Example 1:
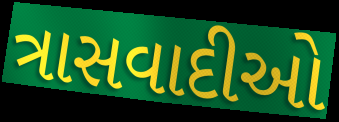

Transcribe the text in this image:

ત્રાસવાદીઓ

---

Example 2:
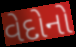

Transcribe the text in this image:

વેદોનો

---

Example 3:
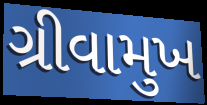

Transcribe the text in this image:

ગ્રીવામુખ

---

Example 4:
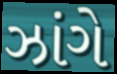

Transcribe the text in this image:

ઝાંગે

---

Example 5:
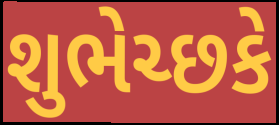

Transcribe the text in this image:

શુભેચ્છકે